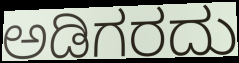
ಅಡಿಗರದು